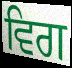
ਵਿਗ